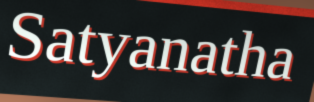
Satyanatha